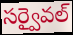
సర్వైవల్